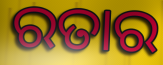
ରତାର